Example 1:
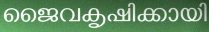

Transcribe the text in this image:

ജൈവകൃഷിക്കായി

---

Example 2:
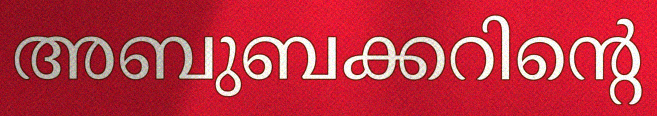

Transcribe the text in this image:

അബുബക്കറിന്റെ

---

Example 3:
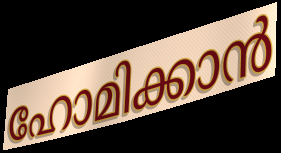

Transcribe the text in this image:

ഹോമിക്കാൻ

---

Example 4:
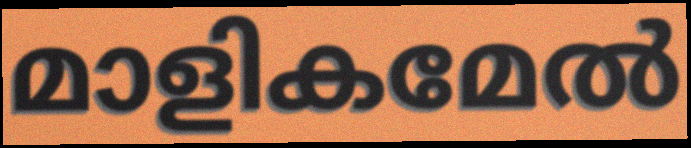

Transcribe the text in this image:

മാളികമേൽ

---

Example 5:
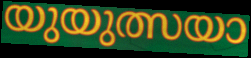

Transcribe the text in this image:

യുയുത്സയാ